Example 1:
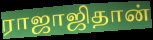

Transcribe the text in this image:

ராஜாஜிதான்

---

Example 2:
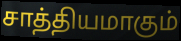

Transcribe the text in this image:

சாத்தியமாகும்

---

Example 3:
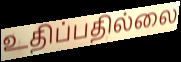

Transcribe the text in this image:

உதிப்பதில்லை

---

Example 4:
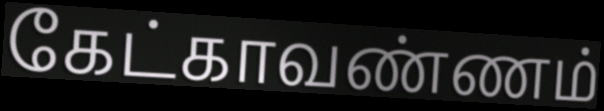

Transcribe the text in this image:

கேட்காவண்ணம்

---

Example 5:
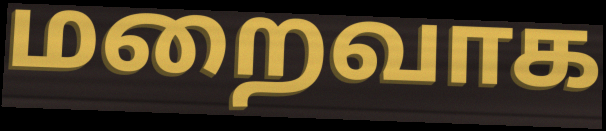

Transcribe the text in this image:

மறைவாக